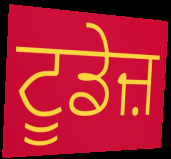
ਟੂਡੇਜ਼